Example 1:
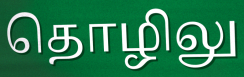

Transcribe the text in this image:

தொழிலு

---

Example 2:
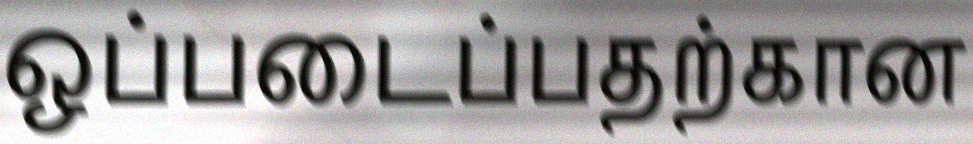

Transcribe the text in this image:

ஒப்படைப்பதற்கான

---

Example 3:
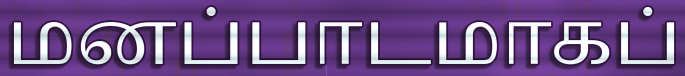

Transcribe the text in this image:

மனப்பாடமாகப்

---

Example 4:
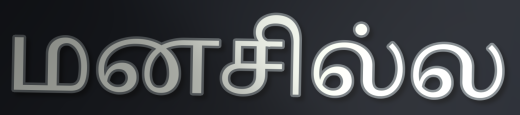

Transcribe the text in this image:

மனசில்ல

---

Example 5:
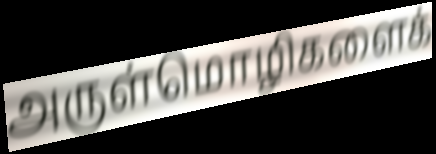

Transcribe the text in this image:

அருள்மொழிகளைக்